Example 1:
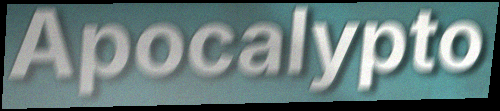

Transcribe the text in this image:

Apocalypto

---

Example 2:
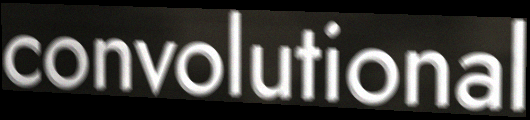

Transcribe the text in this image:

convolutional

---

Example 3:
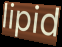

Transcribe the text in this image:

lipid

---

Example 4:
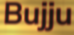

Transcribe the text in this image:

Bujju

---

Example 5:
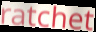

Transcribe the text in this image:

ratchet